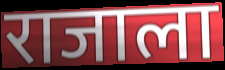
राजाला